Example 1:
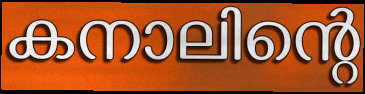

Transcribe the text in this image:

കനാലിന്റെ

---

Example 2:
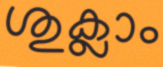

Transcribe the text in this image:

ശുക്ലാം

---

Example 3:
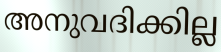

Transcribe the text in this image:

അനുവദിക്കില്ല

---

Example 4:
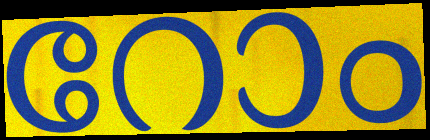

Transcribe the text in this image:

റോം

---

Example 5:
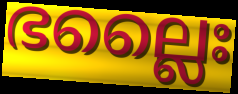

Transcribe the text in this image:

ഭല്ലൈഃ